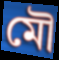
মৌ